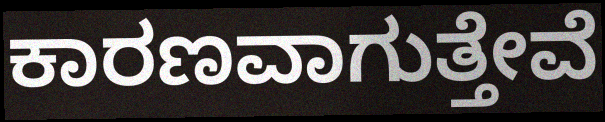
ಕಾರಣವಾಗುತ್ತೇವೆ